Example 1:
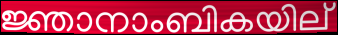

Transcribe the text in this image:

ജ്ഞാനാംബികയില്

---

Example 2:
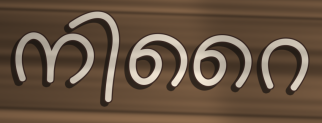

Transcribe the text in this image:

നിറൈ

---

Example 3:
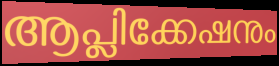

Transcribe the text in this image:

ആപ്ലിക്കേഷനും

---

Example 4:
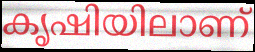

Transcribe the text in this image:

കൃഷിയിലാണ്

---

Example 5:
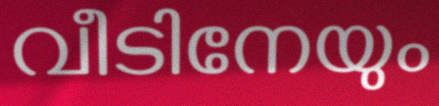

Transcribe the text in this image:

വീടിനേയും